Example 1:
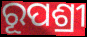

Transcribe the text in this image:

ରୂପଶ୍ରୀ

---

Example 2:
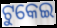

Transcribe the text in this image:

ଟୁକେଇ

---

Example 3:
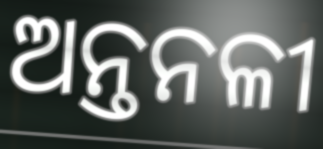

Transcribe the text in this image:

ଅନ୍ତନଳୀ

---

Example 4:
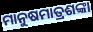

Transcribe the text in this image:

ମାନୁଷମାତ୍ରଶଙ୍କା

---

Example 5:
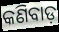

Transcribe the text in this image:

କଣିବାଡ଼